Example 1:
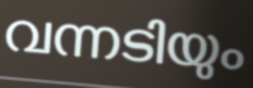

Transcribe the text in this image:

വന്നടിയും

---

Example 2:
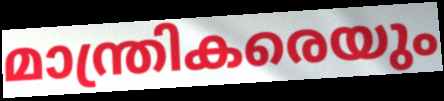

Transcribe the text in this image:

മാന്ത്രികരെയും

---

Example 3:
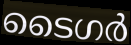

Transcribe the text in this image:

ടൈഗർ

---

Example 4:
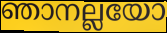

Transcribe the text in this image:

ഞാനല്ലയോ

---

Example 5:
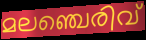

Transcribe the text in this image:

മലഞ്ചെരിവ്